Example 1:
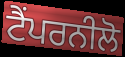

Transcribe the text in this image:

ਟੈਂਪਰਨੀਲੋ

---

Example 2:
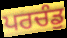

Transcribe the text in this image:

ਪਰਚੰਡੁ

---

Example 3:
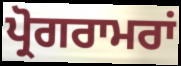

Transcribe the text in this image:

ਪ੍ਰੋਗਰਾਮਰਾਂ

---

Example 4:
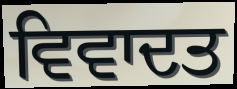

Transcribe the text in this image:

ਵਿਵਾਦਤ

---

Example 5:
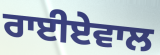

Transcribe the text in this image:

ਰਾਈਏਵਾਲ